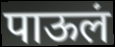
पाऊलं